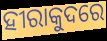
ହୀରାକୁଦରେ